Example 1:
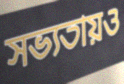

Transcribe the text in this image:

সভ্যতায়ও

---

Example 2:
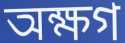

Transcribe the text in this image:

অক্ষগ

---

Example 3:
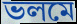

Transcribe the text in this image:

ভলমে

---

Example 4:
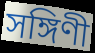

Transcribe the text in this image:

সঙ্গিণী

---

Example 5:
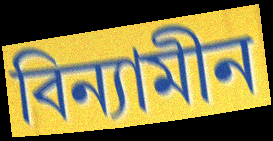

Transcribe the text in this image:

বিন্যামীন